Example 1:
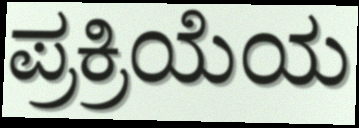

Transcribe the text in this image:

ಪ್ರಕ್ರಿಯೆಯ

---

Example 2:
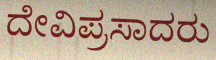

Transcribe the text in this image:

ದೇವಿಪ್ರಸಾದರು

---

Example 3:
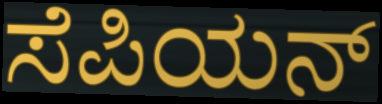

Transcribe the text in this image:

ಸೆಪಿಯನ್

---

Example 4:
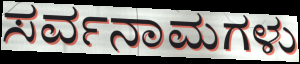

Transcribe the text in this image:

ಸರ್ವನಾಮಗಳು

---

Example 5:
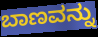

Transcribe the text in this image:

ಬಾಣವನ್ನು